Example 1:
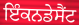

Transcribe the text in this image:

ਇੰਕਨਡੇਸੈਂਟ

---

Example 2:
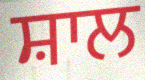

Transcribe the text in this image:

ਸ਼ਾਲ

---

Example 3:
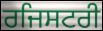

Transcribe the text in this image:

ਰਜਿਸਟਰੀ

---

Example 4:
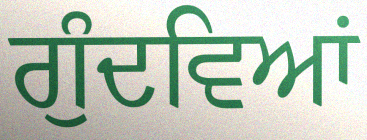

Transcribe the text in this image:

ਗੁੰਦਵਿਆਂ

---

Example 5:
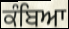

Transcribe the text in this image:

ਕੰਬਿਆ